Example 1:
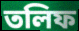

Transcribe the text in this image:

তলিফ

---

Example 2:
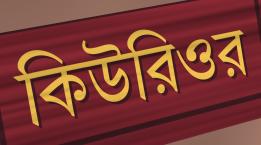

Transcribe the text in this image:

কিউরিওর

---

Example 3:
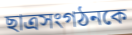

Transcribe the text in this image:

ছাত্রসংগঠনকে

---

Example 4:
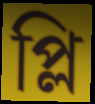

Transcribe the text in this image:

প্লি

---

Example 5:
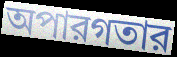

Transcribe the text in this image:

অপারগতার